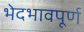
भेदभावपूर्ण